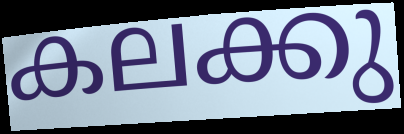
കലക്കു